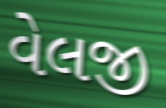
વેલજી